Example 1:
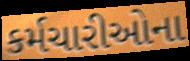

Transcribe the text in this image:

કર્મચારીઓના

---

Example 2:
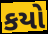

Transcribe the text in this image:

કયો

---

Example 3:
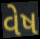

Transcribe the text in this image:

વેષ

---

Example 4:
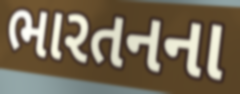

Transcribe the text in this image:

ભારતનના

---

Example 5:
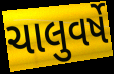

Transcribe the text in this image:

ચાલુવર્ષે